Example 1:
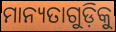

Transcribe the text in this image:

ମାନ୍ୟତାଗୁଡ଼ିକୁ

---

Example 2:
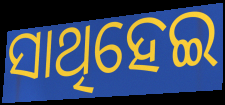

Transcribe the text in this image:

ସାଥିହେଇ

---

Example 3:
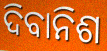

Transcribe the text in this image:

ଦିବାନିଶ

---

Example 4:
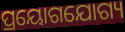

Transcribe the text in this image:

ପ୍ରୟୋଗଯୋଗ୍ୟ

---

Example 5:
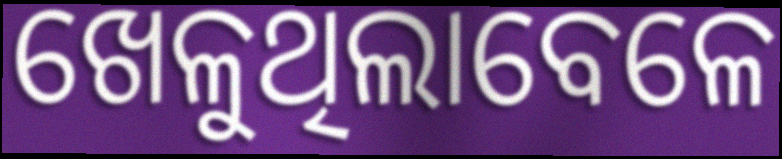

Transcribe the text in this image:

ଖେଳୁଥିଲାବେଳେ